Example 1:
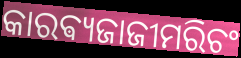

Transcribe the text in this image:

କାରଵ୍ଯଜାଜୀମରିଚଂ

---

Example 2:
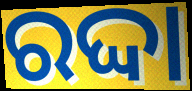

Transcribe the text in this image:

ରଦ୍ଦା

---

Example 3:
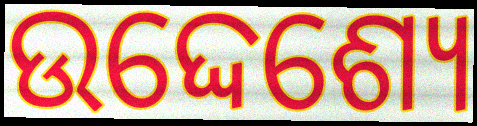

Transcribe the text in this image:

ଉଦ୍ଦେଶ୍ୟେ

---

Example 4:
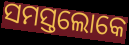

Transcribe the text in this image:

ସମସ୍ତଲୋକେ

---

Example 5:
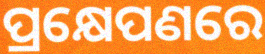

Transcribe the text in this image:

ପ୍ରକ୍ଷେପଣରେ